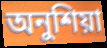
অনুশিয়া